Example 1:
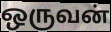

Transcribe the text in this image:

ஒருவன்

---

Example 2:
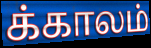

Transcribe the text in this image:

க்காலம்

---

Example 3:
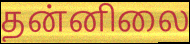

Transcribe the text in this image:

தன்னிலை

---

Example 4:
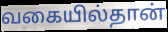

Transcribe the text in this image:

வகையில்தான்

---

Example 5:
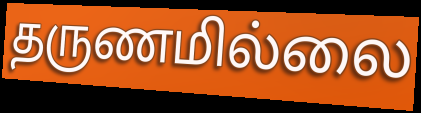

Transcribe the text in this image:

தருணமில்லை